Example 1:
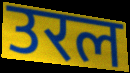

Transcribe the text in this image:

उरल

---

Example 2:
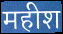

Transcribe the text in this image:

महीश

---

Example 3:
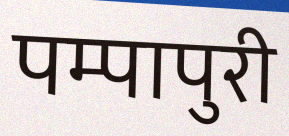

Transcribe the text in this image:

पम्पापुरी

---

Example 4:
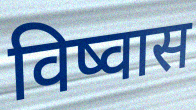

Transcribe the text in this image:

विष्वास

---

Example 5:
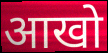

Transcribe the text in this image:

आखो